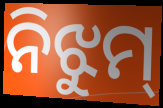
ନିଝୁମ୍